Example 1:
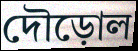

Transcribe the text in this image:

দৌড়োল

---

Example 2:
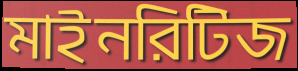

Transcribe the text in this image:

মাইনরিটিজ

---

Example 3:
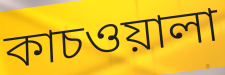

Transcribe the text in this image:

কাচওয়ালা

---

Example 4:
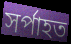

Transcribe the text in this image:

সর্পাহত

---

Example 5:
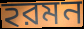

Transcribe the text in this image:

হরমন